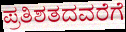
ಪ್ರತಿಶತದವರೆಗೆ